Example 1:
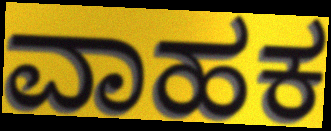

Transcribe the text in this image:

ವಾಹಕ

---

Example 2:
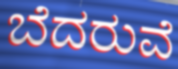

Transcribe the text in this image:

ಬೆದರುವೆ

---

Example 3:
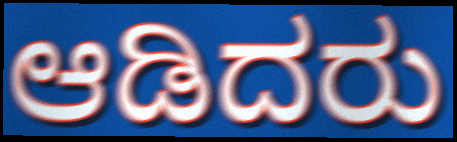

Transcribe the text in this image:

ಆಡಿದರು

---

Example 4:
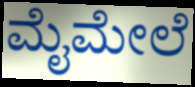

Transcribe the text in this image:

ಮೈಮೇಲೆ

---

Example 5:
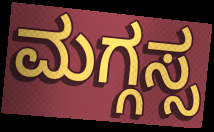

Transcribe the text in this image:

ಮಗ್ಗಸ್ಸ